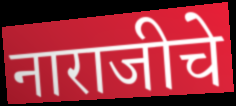
नाराजीचे